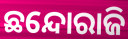
ଛନ୍ଦୋରାଜି